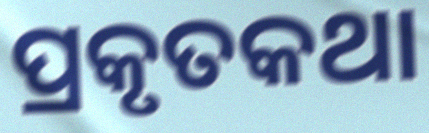
ପ୍ରକୃତକଥା